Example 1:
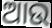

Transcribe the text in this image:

ଆଉ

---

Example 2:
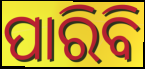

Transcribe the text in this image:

ପାରିବି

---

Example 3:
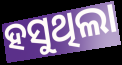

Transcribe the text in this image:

ହସୁଥିଲା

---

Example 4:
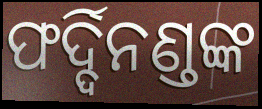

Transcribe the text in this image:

ଫର୍ଦ୍ଦିନଣ୍ଡଙ୍କ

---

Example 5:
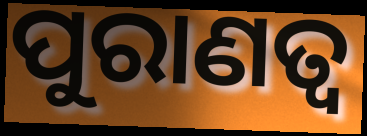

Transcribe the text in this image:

ପୁରାଣତ୍ୱ